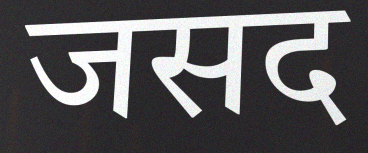
जसद